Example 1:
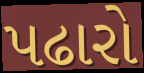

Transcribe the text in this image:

પઢારો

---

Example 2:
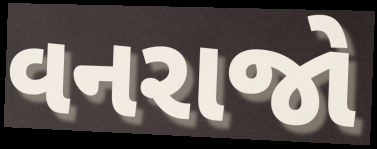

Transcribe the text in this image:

વનરાજો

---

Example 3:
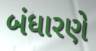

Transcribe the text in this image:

બંધારણે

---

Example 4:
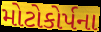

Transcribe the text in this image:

મોટોકોર્પના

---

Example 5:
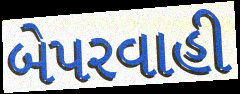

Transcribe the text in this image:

બેપરવાહી